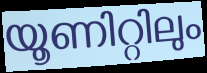
യൂണിറ്റിലും